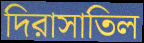
দিরাসাতিল